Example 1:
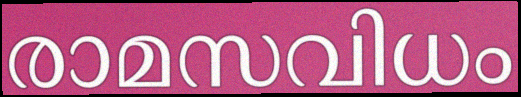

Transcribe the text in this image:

രാമസവിധം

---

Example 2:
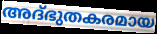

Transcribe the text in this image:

അദ്ഭുതകരമായ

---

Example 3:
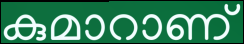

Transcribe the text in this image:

കുമാറാണ്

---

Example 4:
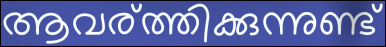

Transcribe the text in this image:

ആവര്ത്തിക്കുന്നുണ്ട്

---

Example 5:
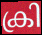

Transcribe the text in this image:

ക്രി